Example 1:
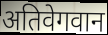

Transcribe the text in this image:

अतिवेगवान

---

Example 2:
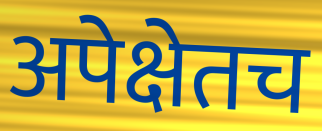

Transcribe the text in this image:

अपेक्षेतच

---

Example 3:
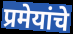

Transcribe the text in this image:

प्रमेयांचे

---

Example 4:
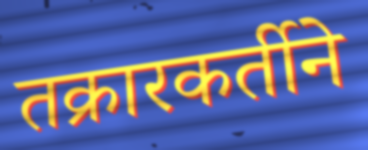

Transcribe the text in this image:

तक्रारकर्तीने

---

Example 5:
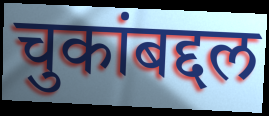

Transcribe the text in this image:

चुकांबद्दल